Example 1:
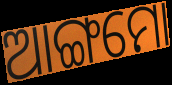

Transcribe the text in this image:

ଆଙ୍ଗମୋ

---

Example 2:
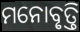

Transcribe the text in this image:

ମନୋବୃତ୍ତି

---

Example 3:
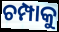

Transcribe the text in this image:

ଚମ୍ପାକୁ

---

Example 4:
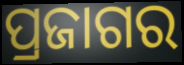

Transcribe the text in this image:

ପ୍ରଜାଗର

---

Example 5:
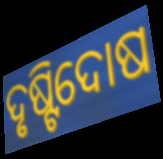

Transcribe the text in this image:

ଦୃଷ୍ଟିଦୋଷ